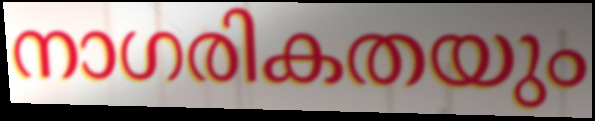
നാഗരികതയും